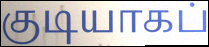
குடியாகப்